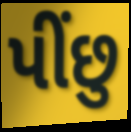
પીંછુ